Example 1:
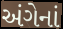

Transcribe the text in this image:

અંગેનાં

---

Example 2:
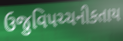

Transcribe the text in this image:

ઉજુવિપચ્ચનીકતાય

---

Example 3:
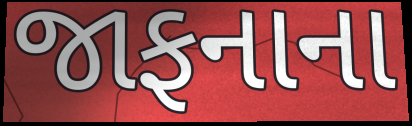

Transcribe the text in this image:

જાફનાના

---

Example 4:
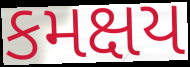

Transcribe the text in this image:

કમક્ષય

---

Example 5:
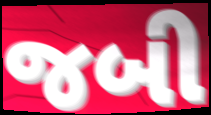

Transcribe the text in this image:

જબી